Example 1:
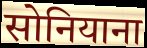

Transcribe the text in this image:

सोनियाना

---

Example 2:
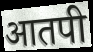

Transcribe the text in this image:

आतपी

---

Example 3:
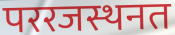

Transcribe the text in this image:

पररजस्थनत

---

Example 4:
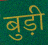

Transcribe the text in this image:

बुड़ी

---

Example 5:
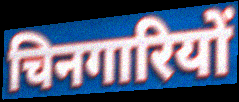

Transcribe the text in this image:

चिनगारियों